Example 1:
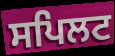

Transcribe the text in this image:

ਸਪਿਲਟ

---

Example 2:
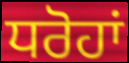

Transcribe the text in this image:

ਧਰੋਹਾਂ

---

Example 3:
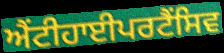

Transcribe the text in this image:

ਐਂਟੀਹਾਈਪਰਟੈਂਸਿਵ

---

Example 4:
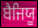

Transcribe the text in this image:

ਬੈਜਿਯੂ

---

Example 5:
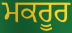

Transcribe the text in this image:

ਮਕਰੂਰ